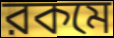
রকমে